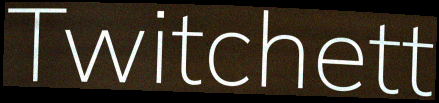
Twitchett